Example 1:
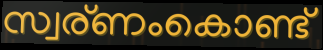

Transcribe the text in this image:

സ്വര്ണംകൊണ്ട്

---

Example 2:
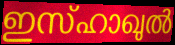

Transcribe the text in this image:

ഇസ്ഹാഖുൽ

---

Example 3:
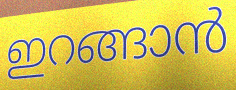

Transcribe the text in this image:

ഇറങ്ങാൻ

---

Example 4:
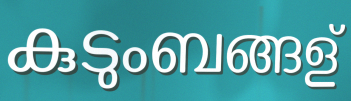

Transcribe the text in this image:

കുടുംബങ്ങള്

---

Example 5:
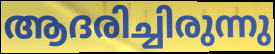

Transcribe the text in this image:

ആദരിച്ചിരുന്നു